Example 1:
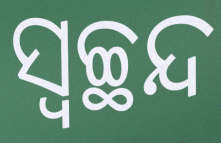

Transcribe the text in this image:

ସ୍ୱଚ୍ଛନ୍ଦ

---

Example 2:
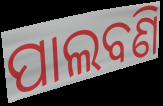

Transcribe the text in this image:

ପାଲବଣି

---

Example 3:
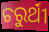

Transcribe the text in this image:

ଚରୁର୍ଥୀ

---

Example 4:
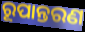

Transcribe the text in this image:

ରୂପାନ୍ତରଣ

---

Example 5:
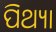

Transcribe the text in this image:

ପିଥ୍ୟା